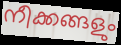
നീക്കങ്ങളും